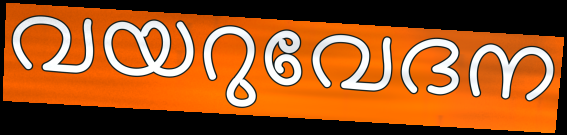
വയറുവേദന